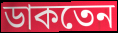
ডাকতেন